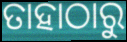
ତାହାଠାରୁ